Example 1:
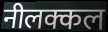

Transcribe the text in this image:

नीलक्कल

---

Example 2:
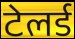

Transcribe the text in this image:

टेलर्ड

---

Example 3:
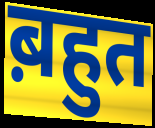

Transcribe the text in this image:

ब़हुत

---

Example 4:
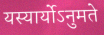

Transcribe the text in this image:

यस्यार्योऽनुमते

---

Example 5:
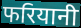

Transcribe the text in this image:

फरियानी